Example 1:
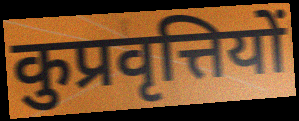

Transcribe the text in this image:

कुप्रवृत्तियों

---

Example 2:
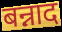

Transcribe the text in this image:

बन्नाद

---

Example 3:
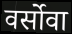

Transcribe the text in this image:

वर्सोवा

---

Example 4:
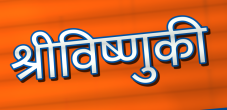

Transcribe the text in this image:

श्रीविष्णुकी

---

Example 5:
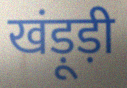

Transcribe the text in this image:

खंड़ूड़ी